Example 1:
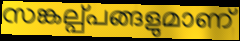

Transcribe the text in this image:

സങ്കല്പ്പങ്ങളുമാണ്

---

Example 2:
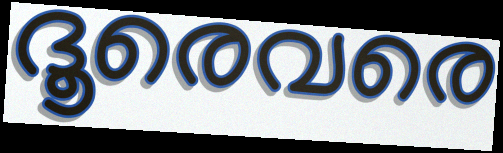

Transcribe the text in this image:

ദൂരെവരെ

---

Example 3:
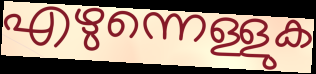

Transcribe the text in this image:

എഴുന്നെള്ളുക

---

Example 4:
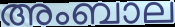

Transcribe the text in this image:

അംബാല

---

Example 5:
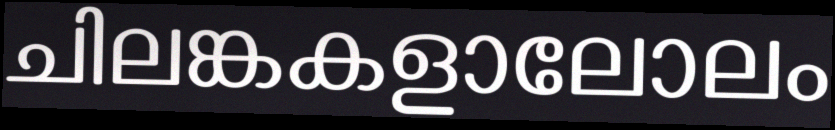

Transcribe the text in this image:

ചിലങ്കകളാലോലം